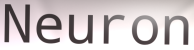
Neuron